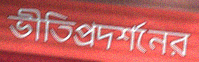
ভীতিপ্রদর্শনের